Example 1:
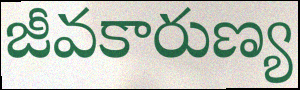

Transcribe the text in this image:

జీవకారుణ్య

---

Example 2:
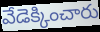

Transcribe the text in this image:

వేడెక్కించారు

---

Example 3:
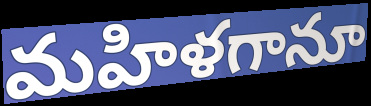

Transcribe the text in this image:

మహిళగానూ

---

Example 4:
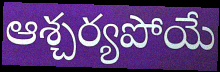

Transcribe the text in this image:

ఆశ్చర్యపోయే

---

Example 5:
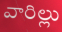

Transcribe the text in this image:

వారిల్లు